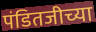
पंडितजीच्या